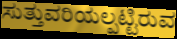
ಸುತ್ತುವರಿಯಲ್ಪಟ್ಟಿರುವ